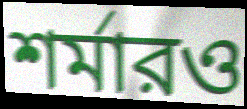
শর্মারও